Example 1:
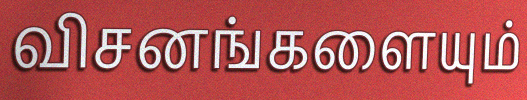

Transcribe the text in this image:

விசனங்களையும்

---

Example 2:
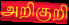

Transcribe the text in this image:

அறிகுறி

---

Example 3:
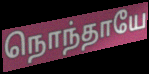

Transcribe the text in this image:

நொந்தாயே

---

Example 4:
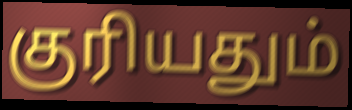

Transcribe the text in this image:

குரியதும்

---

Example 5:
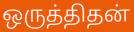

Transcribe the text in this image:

ஒருத்திதன்